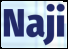
Naji